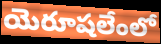
యెరూషలేంలో